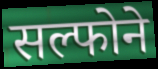
सल्फोने